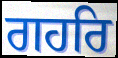
ਗਹਰਿ